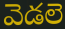
వెడలె